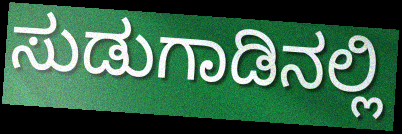
ಸುಡುಗಾಡಿನಲ್ಲಿ